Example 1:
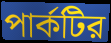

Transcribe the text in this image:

পার্কটির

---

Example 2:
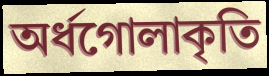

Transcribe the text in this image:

অর্ধগোলাকৃতি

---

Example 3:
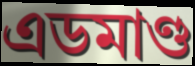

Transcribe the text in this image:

এডমাণ্ড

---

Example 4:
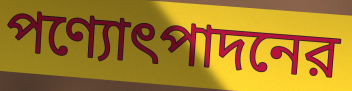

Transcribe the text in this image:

পণ্যোৎপাদনের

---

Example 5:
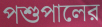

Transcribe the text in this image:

পশুপালের